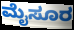
ಮೈಸೂರ